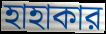
হাহাকার